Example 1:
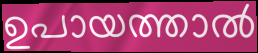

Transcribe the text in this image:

ഉപായത്താൽ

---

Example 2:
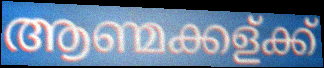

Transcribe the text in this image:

ആണ്മക്കള്ക്ക്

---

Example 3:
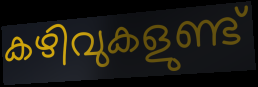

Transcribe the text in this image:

കഴിവുകളുണ്ട്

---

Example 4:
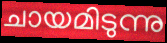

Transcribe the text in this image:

ചായമിടുന്നു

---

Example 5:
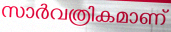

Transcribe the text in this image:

സാർവത്രികമാണ്